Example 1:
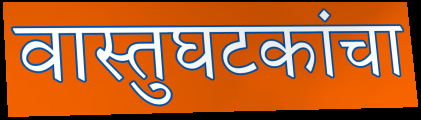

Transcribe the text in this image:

वास्तुघटकांचा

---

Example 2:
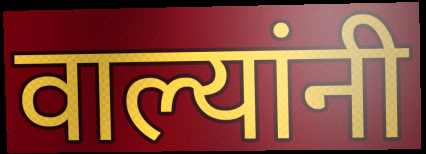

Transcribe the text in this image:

वाल्यांनी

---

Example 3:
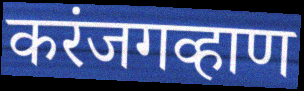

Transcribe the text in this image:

करंजगव्हाण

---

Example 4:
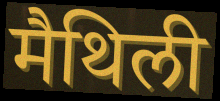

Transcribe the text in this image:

मैथिली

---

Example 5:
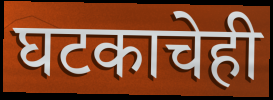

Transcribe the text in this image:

घटकाचेही